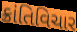
ક્રાંતિવિચાર